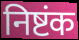
निष्टंक